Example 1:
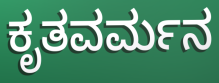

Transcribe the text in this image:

ಕೃತವರ್ಮನ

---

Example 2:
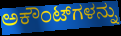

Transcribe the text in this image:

ಅಕೌಂಟ್‌ಗಳನ್ನು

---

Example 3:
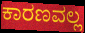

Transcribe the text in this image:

ಕಾರಣವಲ್ಲ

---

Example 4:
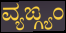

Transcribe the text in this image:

ವ್ಯಙ್ಗ್ಯಂ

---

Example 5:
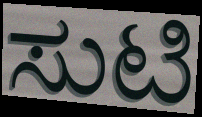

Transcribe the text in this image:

ಸುಟಿ